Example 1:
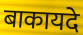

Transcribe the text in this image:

बाकायदे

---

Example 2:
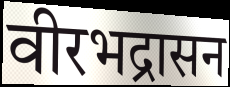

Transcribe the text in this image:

वीरभद्रासन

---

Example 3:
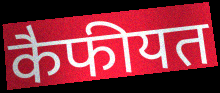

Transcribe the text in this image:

कैफीयत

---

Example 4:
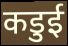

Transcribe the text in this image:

कडुई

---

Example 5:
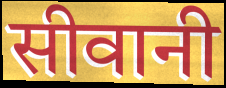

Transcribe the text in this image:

सीवानी